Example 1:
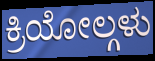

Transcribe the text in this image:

ಕ್ರಿಯೋಲ್ಗಳು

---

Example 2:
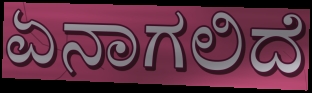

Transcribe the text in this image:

ಏನಾಗಲಿದೆ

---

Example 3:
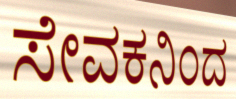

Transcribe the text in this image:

ಸೇವಕನಿಂದ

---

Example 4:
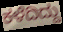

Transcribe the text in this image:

ಕಳೆದಿದ್ದು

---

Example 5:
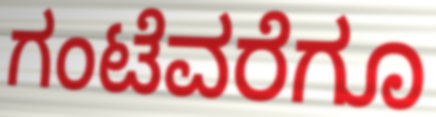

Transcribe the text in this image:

ಗಂಟೆವರೆಗೂ